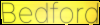
Bedford